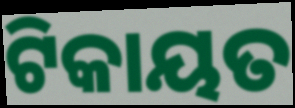
ଟିକାୟତ